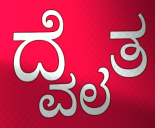
ದ್ವೈತ